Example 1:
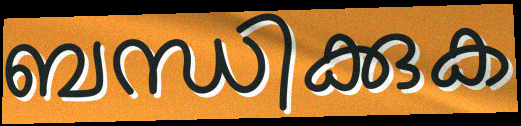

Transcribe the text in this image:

ബന്ധിക്കുക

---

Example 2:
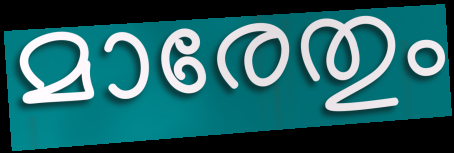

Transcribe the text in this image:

മാരേതും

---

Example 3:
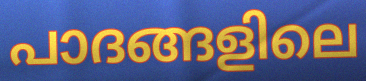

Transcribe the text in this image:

പാദങ്ങളിലെ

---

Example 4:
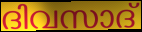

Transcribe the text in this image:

ദിവസാദ്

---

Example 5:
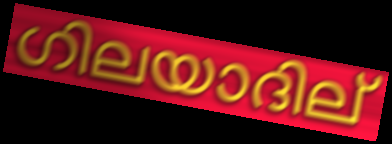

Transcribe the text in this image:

ഗിലയാദില്